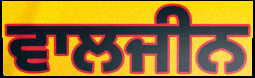
ਵਾਲਜੀਨ